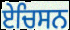
ਏਚਿਸਨ